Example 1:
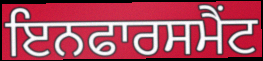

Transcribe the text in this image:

ਇਨਫਾਰਸਮੈਂਟ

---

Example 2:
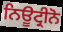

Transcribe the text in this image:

ਨਿਊਟ੍ਰੀਨੋ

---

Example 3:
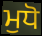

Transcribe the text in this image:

ਮੁਧੋ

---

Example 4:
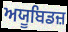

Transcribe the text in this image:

ਅਯੂਬਿਡਜ਼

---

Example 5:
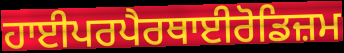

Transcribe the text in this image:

ਹਾਈਪਰਪੈਰਥਾਈਰੋਡਿਜ਼ਮ